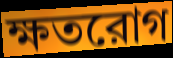
ক্ষতরোগ